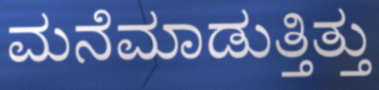
ಮನೆಮಾಡುತ್ತಿತ್ತು